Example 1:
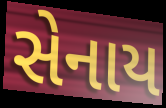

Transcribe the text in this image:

સેનાય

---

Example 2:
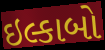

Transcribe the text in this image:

ઇલ્કાબો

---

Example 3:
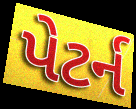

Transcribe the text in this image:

પેટર્ન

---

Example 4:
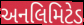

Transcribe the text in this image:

અનલિમિટેડ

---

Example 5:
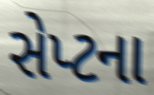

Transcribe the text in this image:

સેપ્ટના